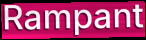
Rampant